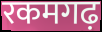
रकमगढ़